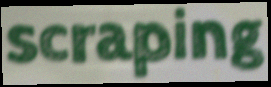
scraping